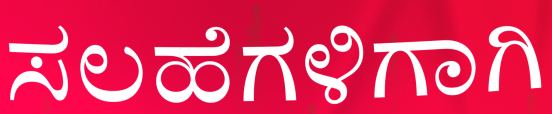
ಸಲಹೆಗಳಿಗಾಗಿ